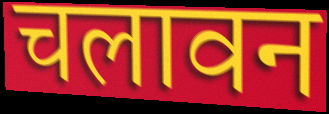
चलावन